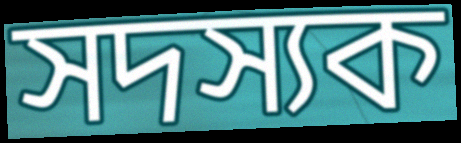
সদস্যক